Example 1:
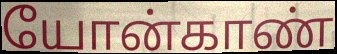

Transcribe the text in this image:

யோன்காண்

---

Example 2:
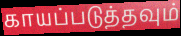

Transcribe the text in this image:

காயப்படுத்தவும்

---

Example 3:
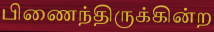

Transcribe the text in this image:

பிணைந்திருக்கின்ற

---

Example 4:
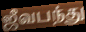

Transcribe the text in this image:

ஜீவபந்து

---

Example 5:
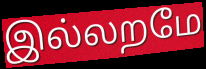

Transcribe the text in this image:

இல்லறமே